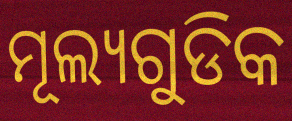
ମୂଲ୍ୟଗୁଡିକ